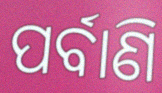
ପର୍ବାଣି